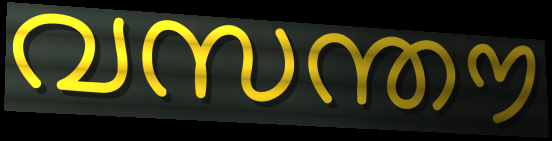
വസന്തൗ